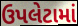
ઉપલેટામાં